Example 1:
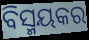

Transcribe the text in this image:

ବିସ୍ମୟକର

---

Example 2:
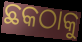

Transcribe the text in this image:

ଛକଠାକୁ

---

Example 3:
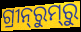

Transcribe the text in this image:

ଗ୍ରୀନ୍‌ରୁମ୍‌ରୁ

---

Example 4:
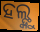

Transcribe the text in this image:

ହଲ୍ଙ୍କୁ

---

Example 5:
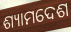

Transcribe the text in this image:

ଶ୍ୟାମଦେଶ